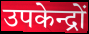
उपकेन्द्रों